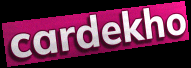
cardekho